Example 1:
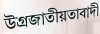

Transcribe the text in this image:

উগ্ৰজাতীয়তাবাদী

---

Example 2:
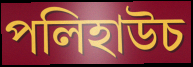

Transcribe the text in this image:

পলিহাউচ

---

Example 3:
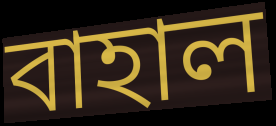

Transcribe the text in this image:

বাহাল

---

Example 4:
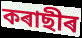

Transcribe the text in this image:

কৰাছীৰ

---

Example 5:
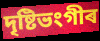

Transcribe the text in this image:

দৃষ্টিভংগীৰ